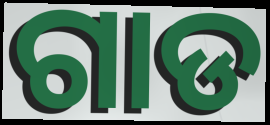
ଗାଡ